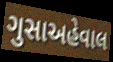
ગુસાઅહેવાલ